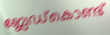
ബ്ലേഡ്കൊണ്ട്